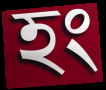
হং